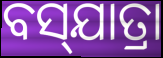
ବସ୍‌ଯାତ୍ରା